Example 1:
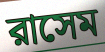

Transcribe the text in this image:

রাসেম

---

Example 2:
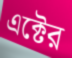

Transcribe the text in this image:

এক্টের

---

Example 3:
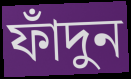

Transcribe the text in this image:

ফাঁদুন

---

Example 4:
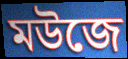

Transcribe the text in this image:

মউজে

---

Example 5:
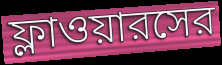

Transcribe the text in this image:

ফ্লাওয়ারসের